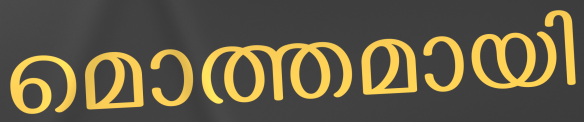
മൊത്തമായി